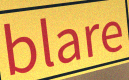
blare